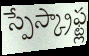
స్పేస్క్రాఫ్ట్ల